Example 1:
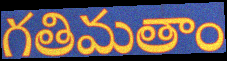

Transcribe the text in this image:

గతిమతాం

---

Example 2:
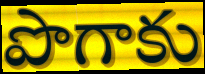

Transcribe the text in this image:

పొగాకు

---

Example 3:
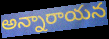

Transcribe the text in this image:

అన్నారాయన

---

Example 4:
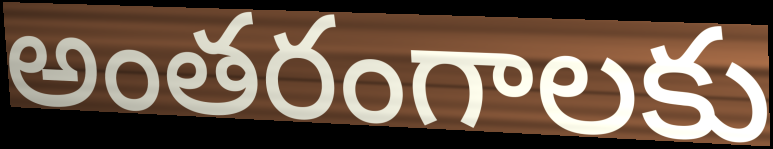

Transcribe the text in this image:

అంతరంగాలకు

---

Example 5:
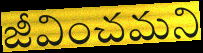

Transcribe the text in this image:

జీవించమని